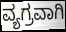
ವ್ಯಗ್ರವಾಗಿ